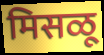
मिसळू